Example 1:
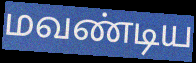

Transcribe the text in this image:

மவண்டிய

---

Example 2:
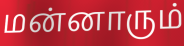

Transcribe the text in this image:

மன்னாரும்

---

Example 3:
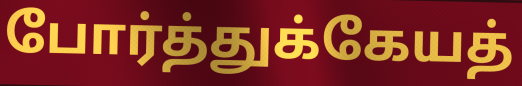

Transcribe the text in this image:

போர்த்துக்கேயத்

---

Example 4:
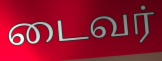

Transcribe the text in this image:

டைவர்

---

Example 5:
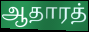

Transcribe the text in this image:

ஆதாரத்